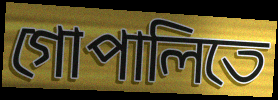
গোপালিতে